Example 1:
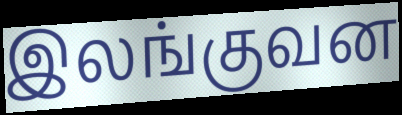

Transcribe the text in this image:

இலங்குவன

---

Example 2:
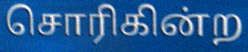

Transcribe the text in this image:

சொரிகின்ற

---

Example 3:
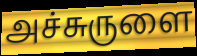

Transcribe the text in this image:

அச்சுருளை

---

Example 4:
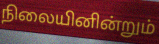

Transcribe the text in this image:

நிலையினின்றும்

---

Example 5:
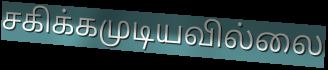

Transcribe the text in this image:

சகிக்கமுடியவில்லை